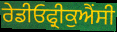
ਰੇਡੀਓਫ੍ਰੀਕੁਐਂਸੀ